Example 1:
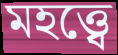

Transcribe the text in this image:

মহত্ত্বে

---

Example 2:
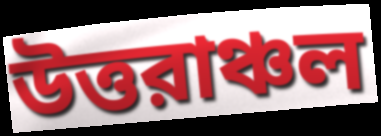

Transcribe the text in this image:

উত্তরাঞ্চল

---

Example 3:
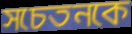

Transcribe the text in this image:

সচেতনকে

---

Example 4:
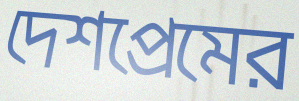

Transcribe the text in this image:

দেশপ্রেমের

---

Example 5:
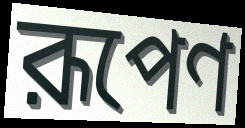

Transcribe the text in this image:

রূপেণ